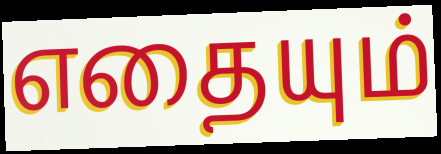
எதையும்